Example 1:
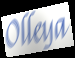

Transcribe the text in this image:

Olleya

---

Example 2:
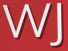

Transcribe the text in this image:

WJ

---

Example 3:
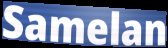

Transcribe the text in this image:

Samelan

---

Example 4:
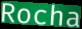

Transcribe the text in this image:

Rocha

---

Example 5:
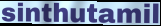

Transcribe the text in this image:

sinthutamil